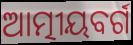
ଆତ୍ମୀୟବର୍ଗ